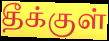
தீக்குள்